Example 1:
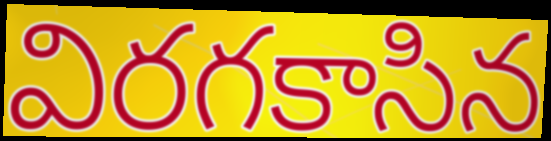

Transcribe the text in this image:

విరగకాసిన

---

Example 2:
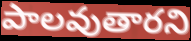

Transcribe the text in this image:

పాలవుతారని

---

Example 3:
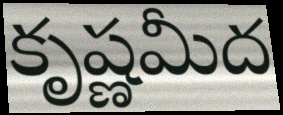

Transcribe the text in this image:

కృష్ణమీద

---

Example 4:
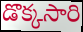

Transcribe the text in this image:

డొక్కసారి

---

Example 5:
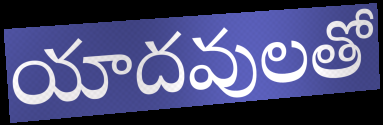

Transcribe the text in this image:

యాదవులతో